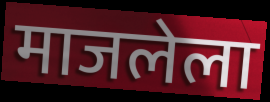
माजलेला